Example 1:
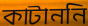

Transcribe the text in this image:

কাটাননি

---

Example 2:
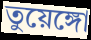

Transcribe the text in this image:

তুয়েঙ্গো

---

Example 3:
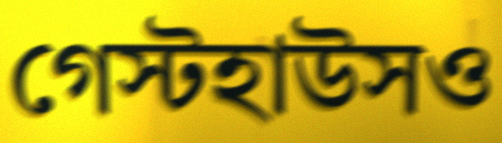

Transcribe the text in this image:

গেস্টহাউসও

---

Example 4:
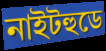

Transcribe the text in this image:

নাইটহুডে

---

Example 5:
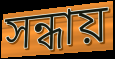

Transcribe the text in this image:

সন্ধায়